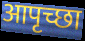
आपृच्छा